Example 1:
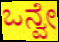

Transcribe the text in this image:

ಒನ್ವೇ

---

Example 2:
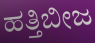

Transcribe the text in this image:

ಹತ್ತಿಬೀಜ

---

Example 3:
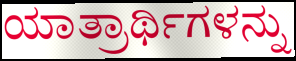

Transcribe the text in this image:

ಯಾತ್ರಾರ್ಥಿಗಳನ್ನು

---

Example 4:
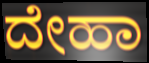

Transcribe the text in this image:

ದೇಹಾ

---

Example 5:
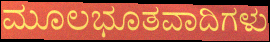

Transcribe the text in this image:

ಮೂಲಭೂತವಾದಿಗಳು